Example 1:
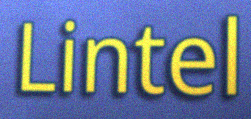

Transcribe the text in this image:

Lintel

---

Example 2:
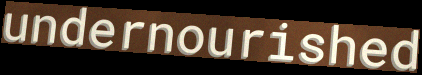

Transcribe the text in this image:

undernourished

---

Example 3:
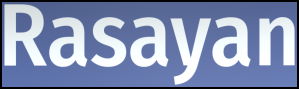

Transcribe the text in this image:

Rasayan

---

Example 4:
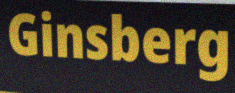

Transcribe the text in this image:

Ginsberg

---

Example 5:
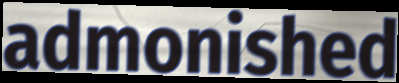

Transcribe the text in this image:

admonished